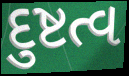
દુષ્ટત્વ